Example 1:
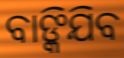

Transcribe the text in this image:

ବାଙ୍କିଯିବ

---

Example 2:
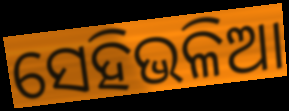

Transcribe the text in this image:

ସେହିଭଳିଆ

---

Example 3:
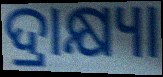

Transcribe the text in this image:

ଦ୍ରାକ୍ଷ୍ୟା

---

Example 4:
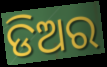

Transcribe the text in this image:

ଡିଅର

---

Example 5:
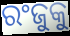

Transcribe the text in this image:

ରଂଜୁକୁ